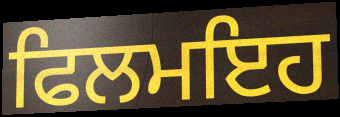
ਫਿਲਮਇਹ